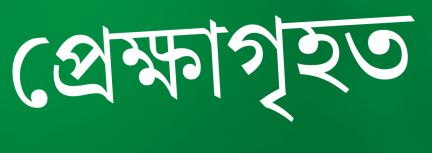
প্ৰেক্ষাগৃহত